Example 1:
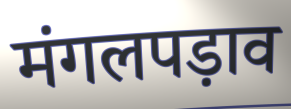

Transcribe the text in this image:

मंगलपड़ाव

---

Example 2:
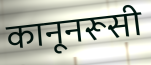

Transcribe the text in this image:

कानूनरूसी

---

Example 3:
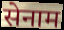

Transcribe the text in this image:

सेनाम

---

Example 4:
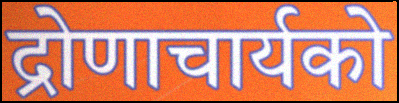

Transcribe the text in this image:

द्रोणाचार्यको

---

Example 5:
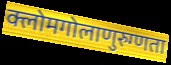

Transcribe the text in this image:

क्लोमगोलाणुरुग्णता